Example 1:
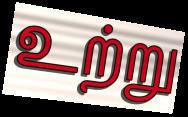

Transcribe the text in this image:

உற்று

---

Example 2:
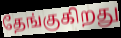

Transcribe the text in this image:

தேங்குகிறது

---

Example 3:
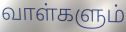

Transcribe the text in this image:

வாள்களும்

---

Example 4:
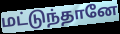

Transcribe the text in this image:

மட்டுந்தானே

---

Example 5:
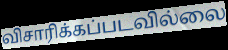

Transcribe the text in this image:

விசாரிக்கப்படவில்லை